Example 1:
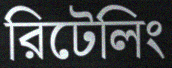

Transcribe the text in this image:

রিটেলিং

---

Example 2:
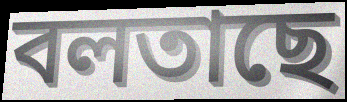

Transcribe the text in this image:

বলতাছে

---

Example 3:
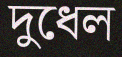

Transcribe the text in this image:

দুধেল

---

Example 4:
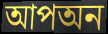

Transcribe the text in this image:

আপঅন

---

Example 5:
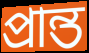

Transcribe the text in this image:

প্রান্ত